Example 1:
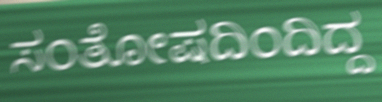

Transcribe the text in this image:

ಸಂತೋಷದಿಂದಿದ್ದ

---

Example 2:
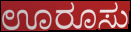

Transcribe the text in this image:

ಊರೂಸು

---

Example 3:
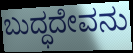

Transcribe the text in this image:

ಬುದ್ಧದೇವನು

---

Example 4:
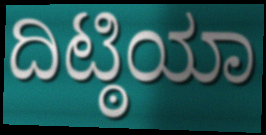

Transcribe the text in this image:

ದಿಟ್ಠಿಯಾ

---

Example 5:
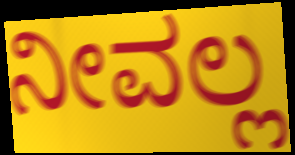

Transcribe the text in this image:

ನೀವಲ್ಲ